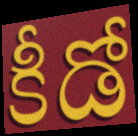
కీడో